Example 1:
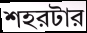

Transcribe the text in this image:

শহরটার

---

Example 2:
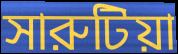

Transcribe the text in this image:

সারুটিয়া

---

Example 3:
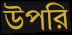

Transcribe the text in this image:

উপরি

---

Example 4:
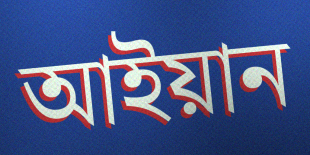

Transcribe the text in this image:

আইয়ান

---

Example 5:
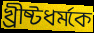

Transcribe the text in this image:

খ্রীষ্টধর্মকে